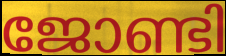
ജോണ്ടി